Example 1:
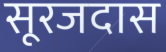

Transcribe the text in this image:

सूरजदास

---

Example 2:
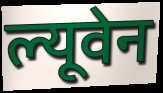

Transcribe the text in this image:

ल्यूवेन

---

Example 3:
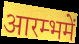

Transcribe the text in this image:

आरम्भमें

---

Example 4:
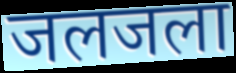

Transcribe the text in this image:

जलजला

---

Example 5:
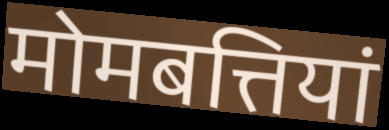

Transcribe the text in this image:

मोमबत्तियां